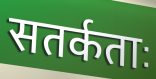
सतर्कताः